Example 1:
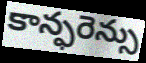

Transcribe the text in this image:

కాన్ఫరెన్సు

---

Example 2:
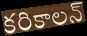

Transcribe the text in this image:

కరికాలన్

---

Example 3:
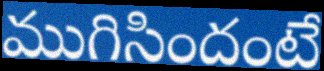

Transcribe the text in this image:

ముగిసిందంటే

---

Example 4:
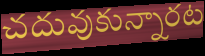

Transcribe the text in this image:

చదువుకున్నారట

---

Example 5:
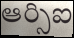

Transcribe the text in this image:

ఆర్సిఐ